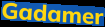
Gadamer